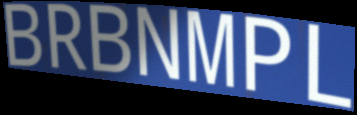
BRBNMPL